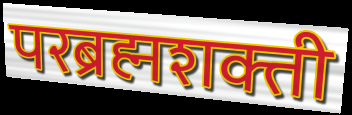
परब्रह्मशक्ती